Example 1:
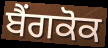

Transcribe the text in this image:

ਬੈਂਗਕੋਕ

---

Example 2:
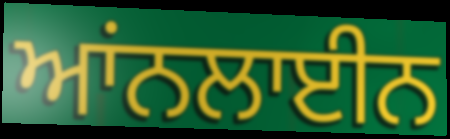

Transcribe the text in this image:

ਆਂਨਲਾਈਨ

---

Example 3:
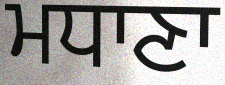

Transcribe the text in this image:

ਮਧਾਣਾ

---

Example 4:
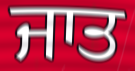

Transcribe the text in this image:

ਜਾਤ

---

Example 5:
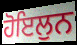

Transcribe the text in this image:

ਹੋਇਲੁਨ